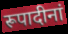
रूपादीनां